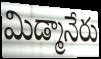
మిడ్మానేరు